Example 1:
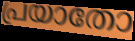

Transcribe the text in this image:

പ്രയാതോ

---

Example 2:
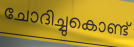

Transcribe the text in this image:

ചോദിച്ചുകൊണ്ട്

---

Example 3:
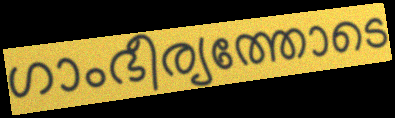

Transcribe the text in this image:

ഗാംഭീര്യത്തോടെ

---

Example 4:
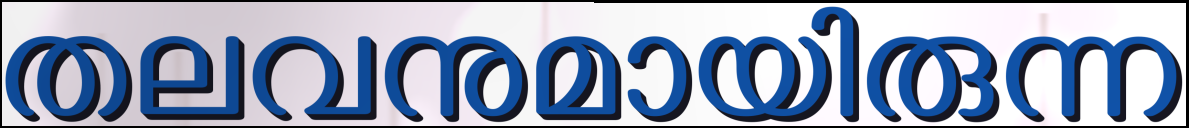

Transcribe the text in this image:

തലവനുമായിരുന്ന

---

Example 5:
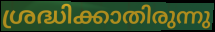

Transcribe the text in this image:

ശ്രദ്ധിക്കാതിരുന്നു